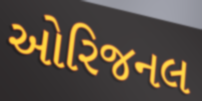
ઓરિજનલ